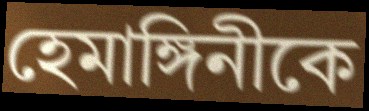
হেমাঙ্গিনীকে